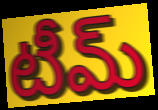
టీమ్